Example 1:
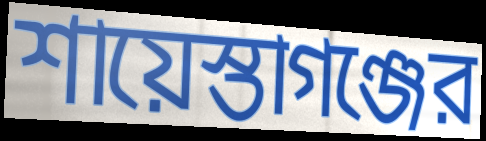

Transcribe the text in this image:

শায়েস্তাগঞ্জের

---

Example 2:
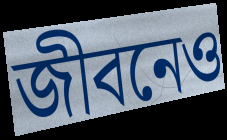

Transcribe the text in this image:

জীবনেও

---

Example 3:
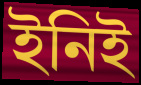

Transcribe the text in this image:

ইনিই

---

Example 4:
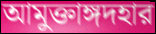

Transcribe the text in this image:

আমুক্তাঙ্গদহার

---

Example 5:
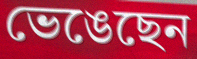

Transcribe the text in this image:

ভেঙেছেন